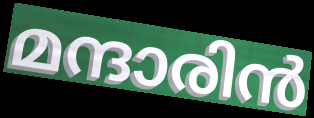
മന്ദാരിൻ